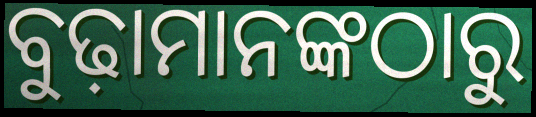
ବୁଢ଼ାମାନଙ୍କଠାରୁ